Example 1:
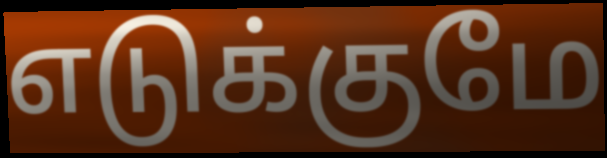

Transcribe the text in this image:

எடுக்குமே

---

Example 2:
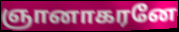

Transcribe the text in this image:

ஞானாகரனே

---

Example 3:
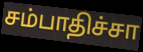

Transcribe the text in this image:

சம்பாதிச்சா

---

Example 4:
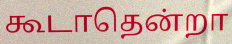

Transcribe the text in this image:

கூடாதென்றா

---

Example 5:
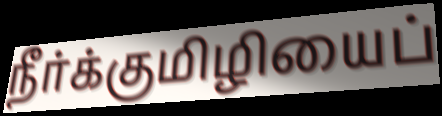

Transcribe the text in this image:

நீர்க்குமிழியைப்